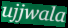
ujjwala